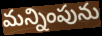
మన్నింపును